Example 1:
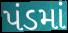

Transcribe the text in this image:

પંડમાં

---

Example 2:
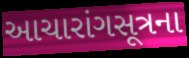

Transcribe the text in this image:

આચારાંગસૂત્રના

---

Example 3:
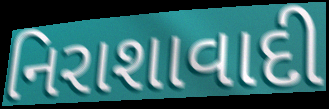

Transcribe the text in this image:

નિરાશાવાદી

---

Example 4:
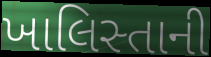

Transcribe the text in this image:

ખાલિસ્તાની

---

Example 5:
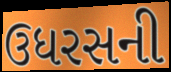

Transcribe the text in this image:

ઉધરસની